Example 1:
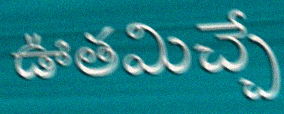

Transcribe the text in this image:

ఊతమిచ్చే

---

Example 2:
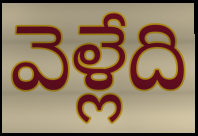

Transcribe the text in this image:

వెళ్లేది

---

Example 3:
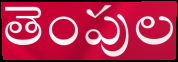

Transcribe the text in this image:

తెంపుల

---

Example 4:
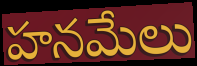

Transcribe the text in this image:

హనమేలు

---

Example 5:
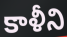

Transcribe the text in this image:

కాళీని